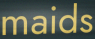
maids